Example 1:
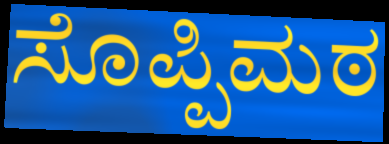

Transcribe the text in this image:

ಸೊಪ್ಪಿಮಠ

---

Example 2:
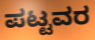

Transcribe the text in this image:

ಪಟ್ಟವರ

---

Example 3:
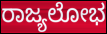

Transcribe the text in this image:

ರಾಜ್ಯಲೋಭ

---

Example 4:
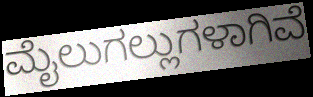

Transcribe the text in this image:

ಮೈಲುಗಲ್ಲುಗಳಾಗಿವೆ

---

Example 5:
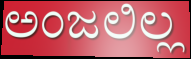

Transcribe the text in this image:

ಅಂಜಲಿಲ್ಲ